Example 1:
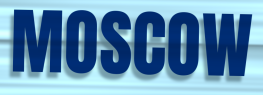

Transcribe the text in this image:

MOSCOW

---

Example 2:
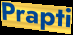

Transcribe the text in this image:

Prapti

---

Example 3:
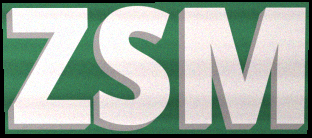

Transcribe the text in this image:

ZSM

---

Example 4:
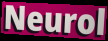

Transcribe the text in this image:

Neurol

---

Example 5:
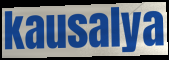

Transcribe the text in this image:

kausalya